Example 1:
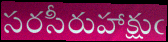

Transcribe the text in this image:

సరసీరుహాక్షుఁ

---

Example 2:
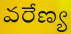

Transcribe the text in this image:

వరేణ్య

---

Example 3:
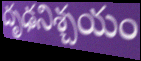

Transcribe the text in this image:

దృఢనిశ్చయం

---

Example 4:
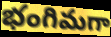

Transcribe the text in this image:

భంగిమగా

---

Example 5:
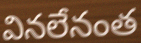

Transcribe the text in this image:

వినలేనంత